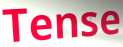
Tense